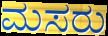
ಮಸರು